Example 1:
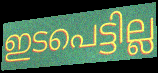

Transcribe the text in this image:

ഇടപെട്ടില്ല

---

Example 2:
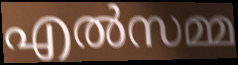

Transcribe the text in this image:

എൽസമ്മ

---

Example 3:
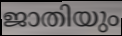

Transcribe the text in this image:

ജാതിയും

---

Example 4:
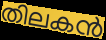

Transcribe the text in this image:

തിലകൻ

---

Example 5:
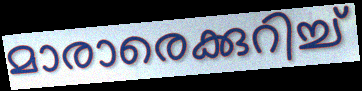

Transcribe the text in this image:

മാരാരെക്കുറിച്ച്